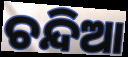
ଚନ୍ଦିଆ